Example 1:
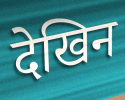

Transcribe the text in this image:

देखिन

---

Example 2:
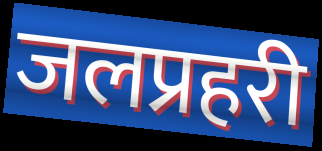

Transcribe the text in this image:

जलप्रहरी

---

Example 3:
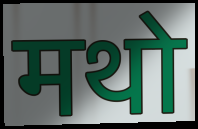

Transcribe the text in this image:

मथो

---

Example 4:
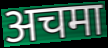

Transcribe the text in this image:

अचमा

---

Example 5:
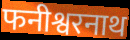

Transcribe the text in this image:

फनीश्वरनाथ